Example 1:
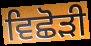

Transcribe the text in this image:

ਵਿਛੋੜੀ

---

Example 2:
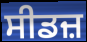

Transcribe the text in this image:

ਸੀਡਜ਼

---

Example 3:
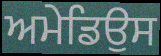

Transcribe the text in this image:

ਅਮੇਡਿਉਸ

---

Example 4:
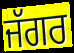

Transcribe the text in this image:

ਜੱਗਰ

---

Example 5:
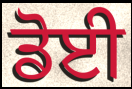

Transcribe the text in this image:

ਡੋਈ